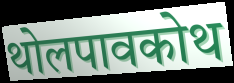
थोलपावकोथ